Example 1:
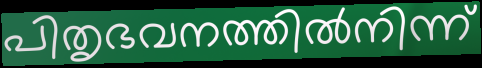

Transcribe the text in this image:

പിതൃഭവനത്തിൽനിന്ന്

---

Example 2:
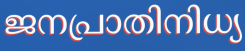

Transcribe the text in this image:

ജനപ്രാതിനിധ്യ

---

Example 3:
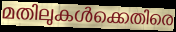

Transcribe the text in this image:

മതിലുകൾക്കെതിരെ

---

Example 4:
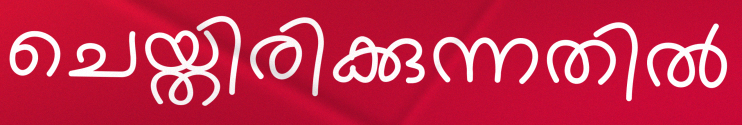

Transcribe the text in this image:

ചെയ്തിരിക്കുന്നതിൽ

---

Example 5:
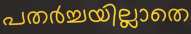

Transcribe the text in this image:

പതർച്ചയില്ലാതെ